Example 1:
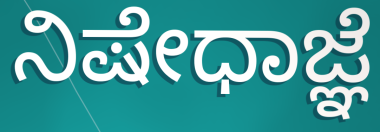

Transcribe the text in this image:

ನಿಷೇಧಾಜ್ಞೆ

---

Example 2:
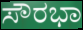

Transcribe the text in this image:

ಸೌರಭಾ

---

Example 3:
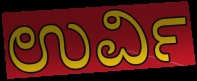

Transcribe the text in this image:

ಉರ್ವಿ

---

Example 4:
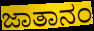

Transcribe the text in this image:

ಜಾತಾನಂ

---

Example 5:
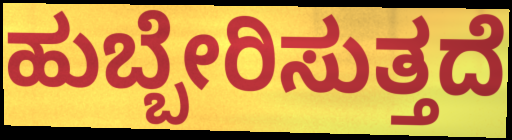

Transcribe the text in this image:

ಹುಬ್ಬೇರಿಸುತ್ತದೆ